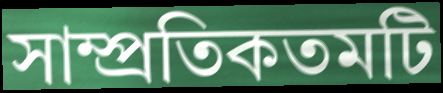
সাম্প্রতিকতমটি